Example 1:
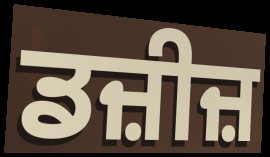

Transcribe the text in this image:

ਡਜ਼ੀਜ਼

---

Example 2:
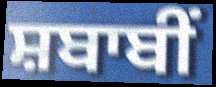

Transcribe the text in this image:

ਸ਼ਬਾਬੀਂ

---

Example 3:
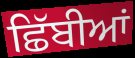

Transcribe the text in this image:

ਛਿੱਬੀਆਂ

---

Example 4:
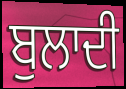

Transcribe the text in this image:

ਬੁਲਾਦੀ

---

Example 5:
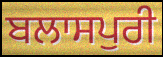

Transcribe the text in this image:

ਬਲਾਸਪੁਰੀ